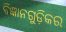
ବିଜ୍ଞାନଗୁଡ଼ିକର